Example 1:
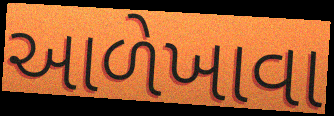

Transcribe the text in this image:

આળેખાવા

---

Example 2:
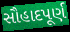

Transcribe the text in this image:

સૌહાદપૂર્ણ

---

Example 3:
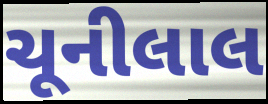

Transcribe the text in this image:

ચૂનીલાલ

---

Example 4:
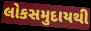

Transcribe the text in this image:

લોકસમુદાયથી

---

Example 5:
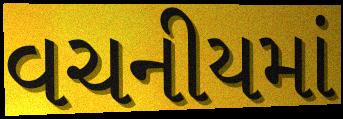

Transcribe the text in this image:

વચનીયમાં